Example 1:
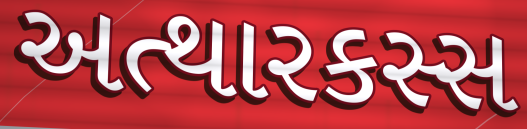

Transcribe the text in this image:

અત્થારકસ્સ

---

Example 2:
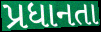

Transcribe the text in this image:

પ્રધાનતા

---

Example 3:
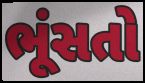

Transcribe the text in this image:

ભૂંસતો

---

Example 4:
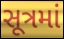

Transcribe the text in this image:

સૂત્રમાં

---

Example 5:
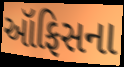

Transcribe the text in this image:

ઑફિસના